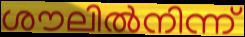
ശൗലിൽനിന്ന്